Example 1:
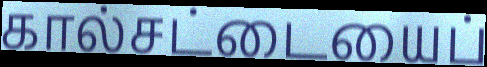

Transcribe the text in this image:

கால்சட்டையைப்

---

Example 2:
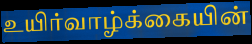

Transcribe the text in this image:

உயிர்வாழ்க்கையின்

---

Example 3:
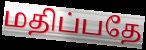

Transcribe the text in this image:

மதிப்பதே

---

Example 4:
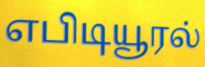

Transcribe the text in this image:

எபிடியூரல்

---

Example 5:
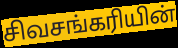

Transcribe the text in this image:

சிவசங்கரியின்